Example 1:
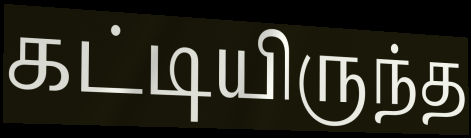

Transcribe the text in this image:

கட்டியிருந்த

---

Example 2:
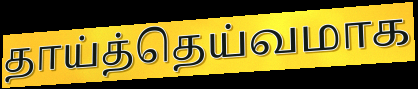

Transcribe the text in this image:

தாய்த்தெய்வமாக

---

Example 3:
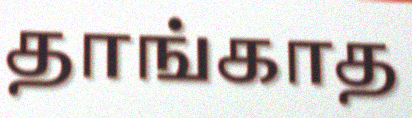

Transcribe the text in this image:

தாங்காத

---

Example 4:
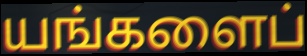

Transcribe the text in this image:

யங்களைப்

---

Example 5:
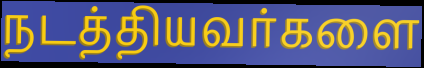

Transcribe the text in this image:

நடத்தியவர்களை